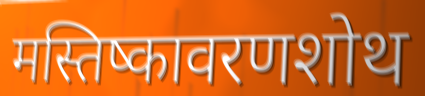
मस्तिष्कावरणशोथ